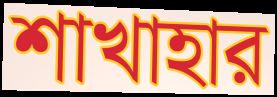
শাখাহার